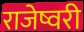
राजेष्वरी